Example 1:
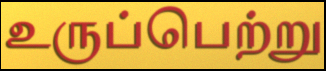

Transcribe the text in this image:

உருப்பெற்று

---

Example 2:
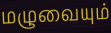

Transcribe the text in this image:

மழுவையும்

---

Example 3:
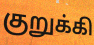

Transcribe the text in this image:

குறுக்கி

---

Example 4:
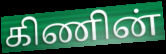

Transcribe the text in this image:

கிணின்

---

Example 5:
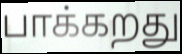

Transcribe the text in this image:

பாக்கறது